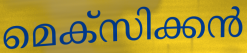
മെക്സിക്കൻ